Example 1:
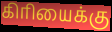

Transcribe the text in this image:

கிரியைக்கு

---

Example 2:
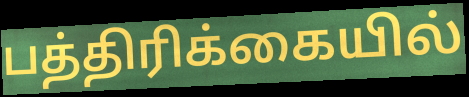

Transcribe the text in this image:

பத்திரிக்கையில்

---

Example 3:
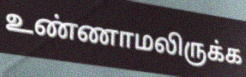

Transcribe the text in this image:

உண்ணாமலிருக்க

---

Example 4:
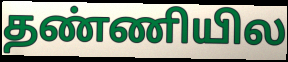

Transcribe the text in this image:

தண்ணியில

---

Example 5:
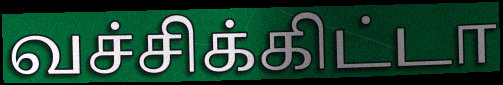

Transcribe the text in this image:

வச்சிக்கிட்டா